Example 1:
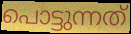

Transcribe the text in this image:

പൊട്ടുന്നത്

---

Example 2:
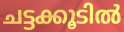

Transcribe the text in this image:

ചട്ടക്കൂടിൽ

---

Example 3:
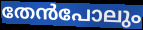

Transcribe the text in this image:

തേൻപോലും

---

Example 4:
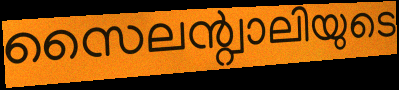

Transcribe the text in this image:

സൈലന്റ്വാലിയുടെ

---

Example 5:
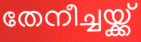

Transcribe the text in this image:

തേനീച്ചയ്ക്ക്